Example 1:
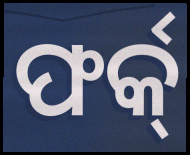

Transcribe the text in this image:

ଫର୍କ୍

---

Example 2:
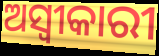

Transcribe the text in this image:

ଅସ୍ଵୀକାରୀ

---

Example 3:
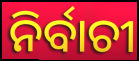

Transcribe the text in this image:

ନିର୍ବାଚୀ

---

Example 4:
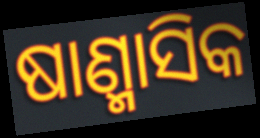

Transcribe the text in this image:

ଷାଣ୍ମାସିକ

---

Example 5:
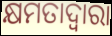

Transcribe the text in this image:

କ୍ଷମତାଦ୍ୱାରା